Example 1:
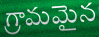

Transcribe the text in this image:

గ్రామమైన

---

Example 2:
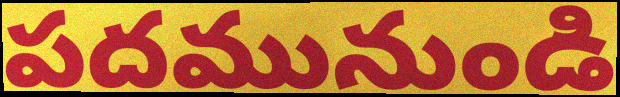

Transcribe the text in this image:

పదమునుండి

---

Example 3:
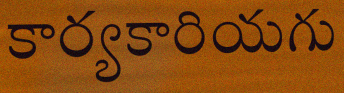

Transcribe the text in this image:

కార్యకారియగు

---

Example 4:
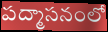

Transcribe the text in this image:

పద్మాసనంలో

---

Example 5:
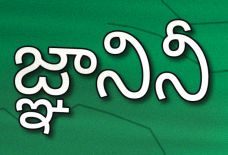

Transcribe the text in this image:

జ్ఞానినీ